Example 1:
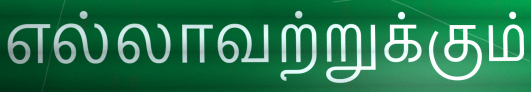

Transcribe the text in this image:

எல்லாவற்றுக்கும்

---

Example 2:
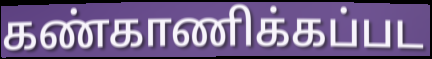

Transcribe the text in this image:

கண்காணிக்கப்பட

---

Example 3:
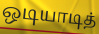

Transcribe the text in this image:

ஒடியாடித்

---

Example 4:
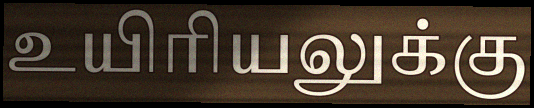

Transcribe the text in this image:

உயிரியலுக்கு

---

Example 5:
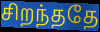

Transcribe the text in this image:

சிறந்ததே